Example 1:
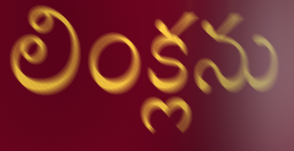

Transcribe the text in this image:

లింక్లను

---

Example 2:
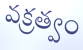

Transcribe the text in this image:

వక్రత్వం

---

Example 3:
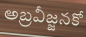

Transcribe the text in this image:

అబ్రవీజ్జనకో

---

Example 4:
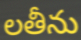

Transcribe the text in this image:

లతీను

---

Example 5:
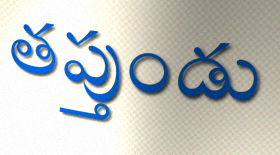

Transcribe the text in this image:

తప్తుండు